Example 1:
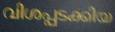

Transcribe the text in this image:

വിശപ്പടക്കിയ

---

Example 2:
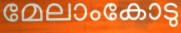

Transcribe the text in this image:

മേലാംകോടു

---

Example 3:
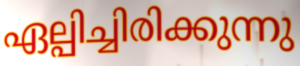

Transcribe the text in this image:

ഏല്പിച്ചിരിക്കുന്നു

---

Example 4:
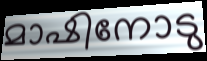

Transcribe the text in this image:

മാഷിനോടു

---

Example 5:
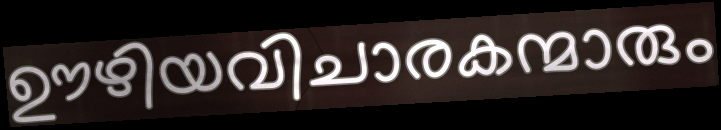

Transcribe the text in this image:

ഊഴിയവിചാരകന്മാരും